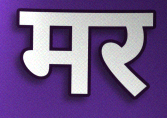
मर